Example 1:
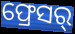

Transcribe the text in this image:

ଫ୍ରେସର୍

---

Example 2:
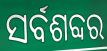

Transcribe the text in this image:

ସର୍ବଶବ୍ଦର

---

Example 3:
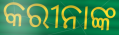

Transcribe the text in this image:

କରୀନାଙ୍କ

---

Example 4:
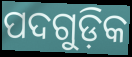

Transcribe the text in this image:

ପଦଗୁଡ଼ିକ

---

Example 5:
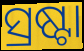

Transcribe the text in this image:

ସ୍ରଷ୍ଟା